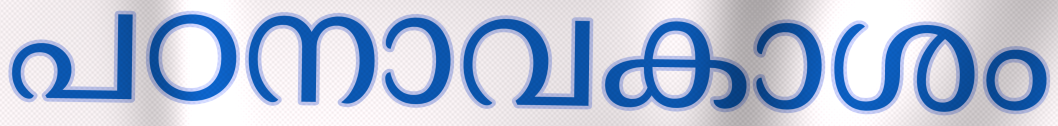
പഠനാവകാശം